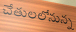
చేతులలోనున్న